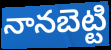
నానబెట్టి